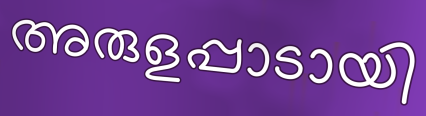
അരുളപ്പാടായി